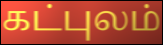
கட்புலம்